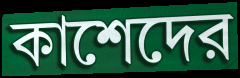
কাশেদের